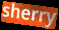
sherry